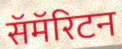
सॅमॅरिटन